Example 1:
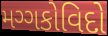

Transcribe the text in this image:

મગ્ગકોવિદો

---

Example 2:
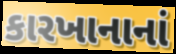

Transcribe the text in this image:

કારખાનાનાં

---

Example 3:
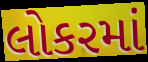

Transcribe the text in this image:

લોકરમાં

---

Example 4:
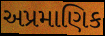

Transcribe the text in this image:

અપ્રમાણિક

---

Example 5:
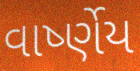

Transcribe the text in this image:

વાર્ષ્ણેય